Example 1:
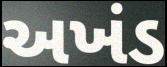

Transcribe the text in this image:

અખંડ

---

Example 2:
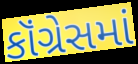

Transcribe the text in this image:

કૉંગ્રેસમાં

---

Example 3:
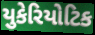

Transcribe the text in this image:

યુકેરિયોટિક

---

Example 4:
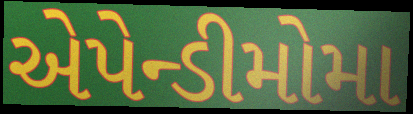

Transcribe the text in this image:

એપેન્ડીમોમા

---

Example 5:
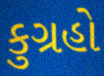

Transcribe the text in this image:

કુગ્રહો